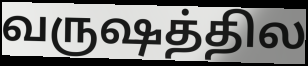
வருஷத்தில